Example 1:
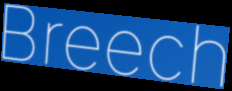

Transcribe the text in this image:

Breech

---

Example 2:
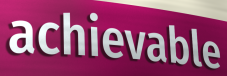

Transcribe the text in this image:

achievable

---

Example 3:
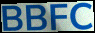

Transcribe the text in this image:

BBFC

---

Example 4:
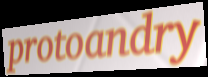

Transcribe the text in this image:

protoandry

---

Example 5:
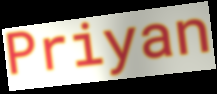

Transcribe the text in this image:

Priyan